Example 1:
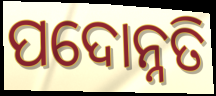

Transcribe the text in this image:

ପଦୋନ୍ନତି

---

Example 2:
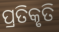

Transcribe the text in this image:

ପ୍ରତିକୃତି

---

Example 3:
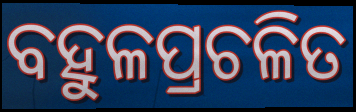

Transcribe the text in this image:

ବହୁଳପ୍ରଚଳିତ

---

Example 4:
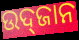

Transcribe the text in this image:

ଉଦ୍‌ଜାନ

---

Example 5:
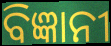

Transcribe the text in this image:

ବିଜ୍ଞାନୀ